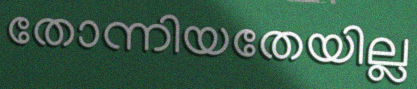
തോന്നിയതേയില്ല